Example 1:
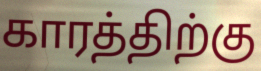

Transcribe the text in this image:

காரத்திற்கு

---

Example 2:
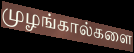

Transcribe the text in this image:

முழங்கால்களை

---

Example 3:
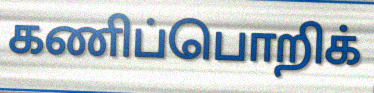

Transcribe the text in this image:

கணிப்பொறிக்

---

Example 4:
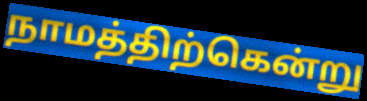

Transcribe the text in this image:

நாமத்திற்கென்று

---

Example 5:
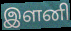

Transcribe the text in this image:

இளனி